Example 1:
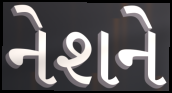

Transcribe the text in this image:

નેશને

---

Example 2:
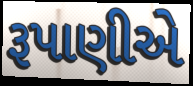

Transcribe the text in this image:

રૂપાણીએ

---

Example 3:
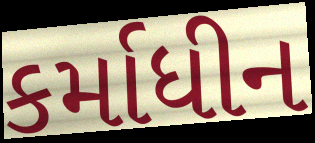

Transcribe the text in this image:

કર્માધીન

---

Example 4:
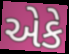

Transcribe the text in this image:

એકે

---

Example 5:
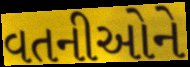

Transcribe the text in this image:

વતનીઓને